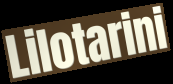
Lilotarini